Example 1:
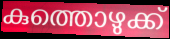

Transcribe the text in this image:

കുത്തൊഴുക്ക്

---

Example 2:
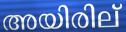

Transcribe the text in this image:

അയിരില്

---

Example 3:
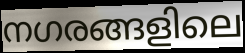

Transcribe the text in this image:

നഗരങ്ങളിലെ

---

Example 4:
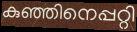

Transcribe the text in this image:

കുഞ്ഞിനെപ്പറ്റി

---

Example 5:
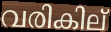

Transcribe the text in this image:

വരികില്